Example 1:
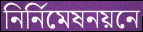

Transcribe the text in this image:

নির্নিমেষনয়নে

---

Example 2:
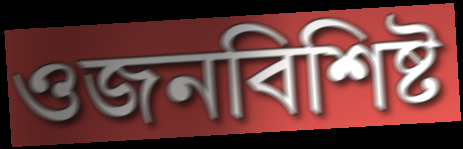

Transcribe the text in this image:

ওজনবিশিষ্ট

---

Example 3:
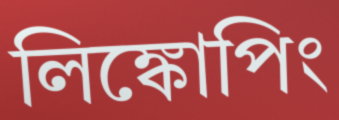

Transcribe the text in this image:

লিঙ্কোপিং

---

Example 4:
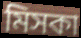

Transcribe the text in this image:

মিসকা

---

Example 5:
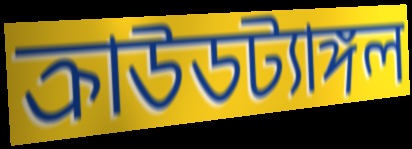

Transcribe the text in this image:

ক্রাউডট্যাঙ্গল